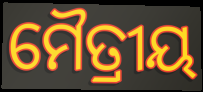
ମୈତ୍ରୀୟ